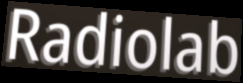
Radiolab